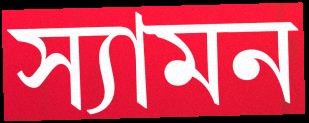
স্যামন